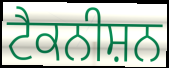
ਟੈਕਨੀਸ਼ਨ